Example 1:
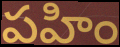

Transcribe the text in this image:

పహిం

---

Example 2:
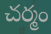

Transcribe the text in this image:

చర్మం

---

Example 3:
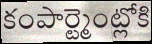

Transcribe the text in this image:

కంపార్ట్మెంట్లోకి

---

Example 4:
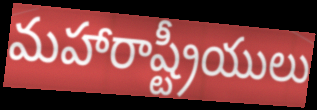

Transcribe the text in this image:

మహారాష్ట్రీయులు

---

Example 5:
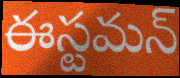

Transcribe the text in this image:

ఈస్టమన్